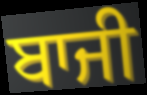
ਬਾਜੀ